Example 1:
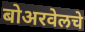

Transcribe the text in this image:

बोअरवेलचे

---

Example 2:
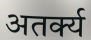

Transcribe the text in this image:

अतर्क्‍य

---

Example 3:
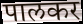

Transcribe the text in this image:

पालकर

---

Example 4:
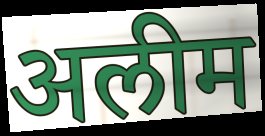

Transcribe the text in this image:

अलीम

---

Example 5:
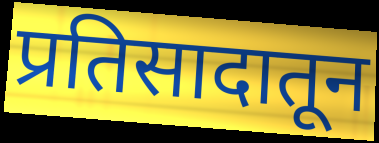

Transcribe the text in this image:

प्रतिसादातून